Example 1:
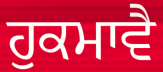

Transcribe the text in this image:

ਹੁਕਮਾਵੈ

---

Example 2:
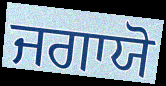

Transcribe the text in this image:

ਜਗਾਯੋ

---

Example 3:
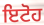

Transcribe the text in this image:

ਇਟੋਹ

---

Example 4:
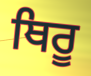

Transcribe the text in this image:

ਥਿਰੂ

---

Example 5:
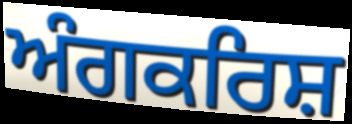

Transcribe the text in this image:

ਅੰਗਕਰਿਸ਼